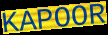
KAPOOR